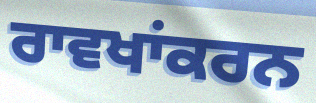
ਰਾਵਖਾਂਕਰਨ